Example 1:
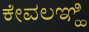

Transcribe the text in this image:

ಕೇವಲಞ್ಹಿ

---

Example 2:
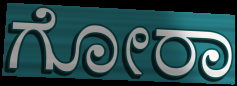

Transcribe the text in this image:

ಗೋರಾ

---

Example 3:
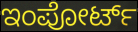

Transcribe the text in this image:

ಇಂಪೋರ್ಟ್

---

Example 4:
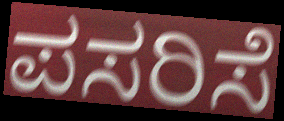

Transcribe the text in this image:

ಪಸರಿಸೆ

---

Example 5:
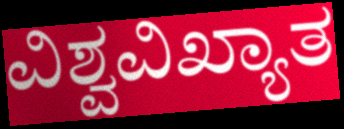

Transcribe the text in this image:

ವಿಶ್ವವಿಖ್ಯಾತ